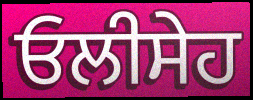
ਓਲੀਸੇਹ